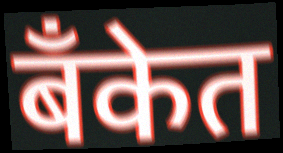
बँकेत